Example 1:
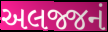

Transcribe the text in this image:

અલજ્જનં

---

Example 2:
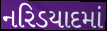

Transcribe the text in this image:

નરિડયાદમાં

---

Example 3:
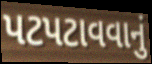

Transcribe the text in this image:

પટપટાવવાનું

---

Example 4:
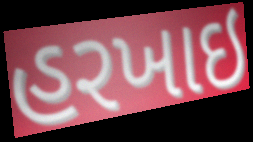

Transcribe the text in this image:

હરખાઇ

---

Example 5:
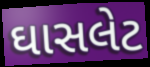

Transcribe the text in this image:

ઘાસલેટ